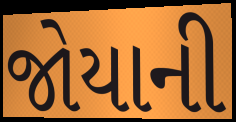
જોયાની